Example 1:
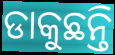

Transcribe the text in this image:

ଡାକୁଛନ୍ତି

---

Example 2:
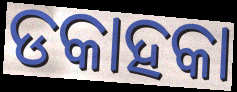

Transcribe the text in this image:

ଡକାହକା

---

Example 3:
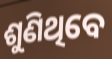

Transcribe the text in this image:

ଶୁଣିଥିବେ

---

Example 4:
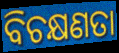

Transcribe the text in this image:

ବିଚକ୍ଷଣତା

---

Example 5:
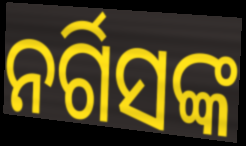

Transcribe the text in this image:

ନର୍ଗିସଙ୍କ